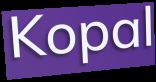
Kopal